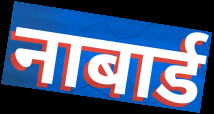
नाबार्ड